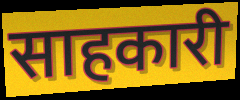
साहकारी